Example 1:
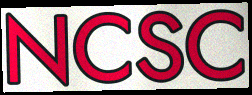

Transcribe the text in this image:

NCSC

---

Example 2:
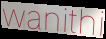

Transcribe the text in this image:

wanithi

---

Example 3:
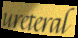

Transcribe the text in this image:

ureteral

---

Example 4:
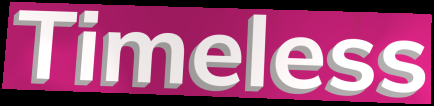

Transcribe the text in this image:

Timeless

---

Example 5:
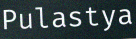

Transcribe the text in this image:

Pulastya